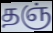
தஞ்